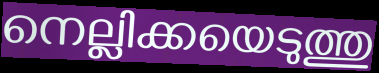
നെല്ലിക്കയെടുത്തു